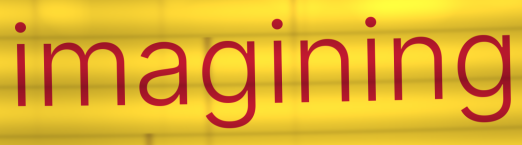
imagining